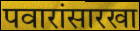
पवारांसारखा